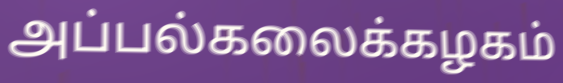
அப்பல்கலைக்கழகம்